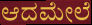
ಆದಮೇಲೆ